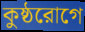
কুষ্ঠরোগে